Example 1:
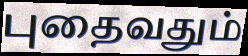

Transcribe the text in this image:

புதைவதும்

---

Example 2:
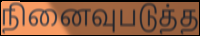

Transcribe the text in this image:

நினைவுபடுத்த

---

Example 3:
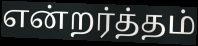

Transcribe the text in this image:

என்றர்த்தம்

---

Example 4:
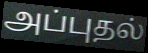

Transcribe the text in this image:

அப்புதல்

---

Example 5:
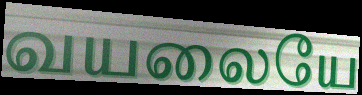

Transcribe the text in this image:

வயலையே